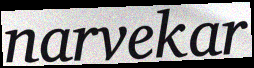
narvekar